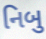
નિબુ